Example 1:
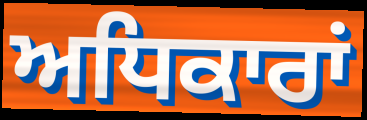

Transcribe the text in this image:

ਅਧਿਕਾਰਾਂ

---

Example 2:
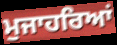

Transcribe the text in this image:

ਮੁਜਾਹਰਿਆਂ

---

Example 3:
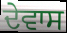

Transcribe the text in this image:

ਦੇਵਾਸ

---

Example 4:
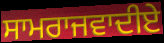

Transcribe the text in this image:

ਸਾਮਰਾਜਵਾਦੀਏ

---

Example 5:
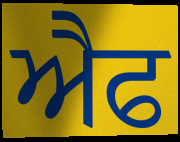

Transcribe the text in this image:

ਐਫ